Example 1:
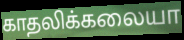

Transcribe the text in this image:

காதலிக்கலையா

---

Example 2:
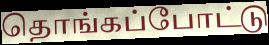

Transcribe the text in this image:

தொங்கப்போட்டு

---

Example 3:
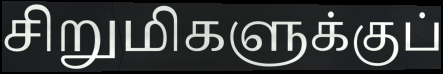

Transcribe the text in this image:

சிறுமிகளுக்குப்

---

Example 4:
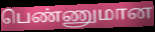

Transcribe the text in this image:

பெண்ணுமான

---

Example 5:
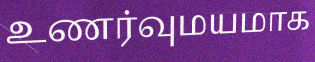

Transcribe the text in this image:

உணர்வுமயமாக